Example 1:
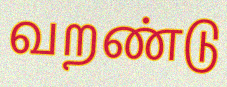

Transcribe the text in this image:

வறண்டு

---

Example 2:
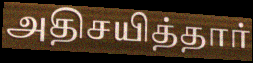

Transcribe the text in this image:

அதிசயித்தார்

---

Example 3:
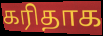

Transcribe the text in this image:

கரிதாக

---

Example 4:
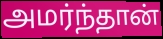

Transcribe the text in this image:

அமர்ந்தான்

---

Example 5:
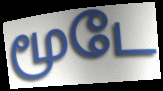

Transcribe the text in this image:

மூடே